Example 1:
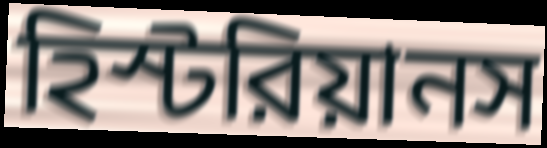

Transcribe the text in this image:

হিস্টরিয়ানস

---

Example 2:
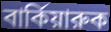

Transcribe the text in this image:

বার্কিয়ারুক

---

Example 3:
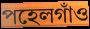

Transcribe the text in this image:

পহেলগাঁও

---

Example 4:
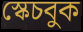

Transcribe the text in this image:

স্কেচবুক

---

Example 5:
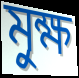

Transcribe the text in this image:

মুক্ষ